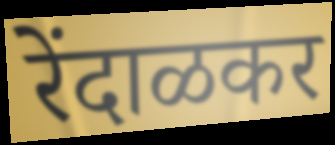
रेंदाळकर